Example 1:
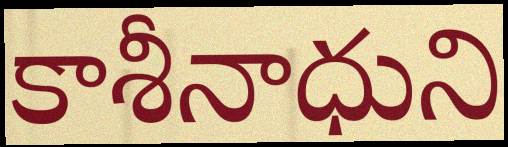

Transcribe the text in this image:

కాశీనాధుని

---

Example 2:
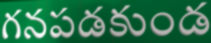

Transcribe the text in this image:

గనపడకుండ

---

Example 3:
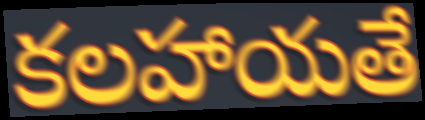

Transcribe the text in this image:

కలహాయతే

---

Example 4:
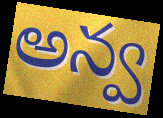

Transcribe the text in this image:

అన్వ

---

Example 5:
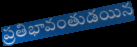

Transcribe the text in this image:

ప్రతిభావంతుడయిన